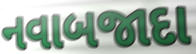
નવાબજાદા